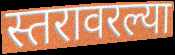
स्तरावरल्या